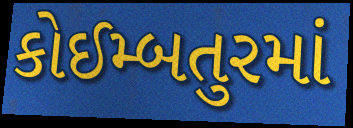
કોઈમ્બતુરમાં